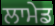
ਲਾਮੇਡ